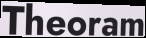
Theoram